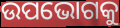
ଉପଭୋଗକୁ